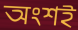
অংশই